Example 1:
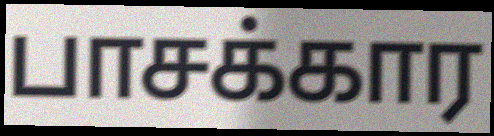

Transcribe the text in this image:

பாசக்கார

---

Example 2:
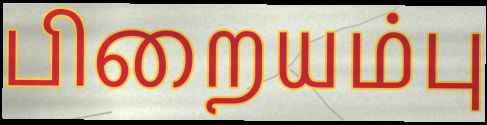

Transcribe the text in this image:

பிறையம்பு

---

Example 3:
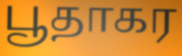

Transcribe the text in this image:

பூதாகர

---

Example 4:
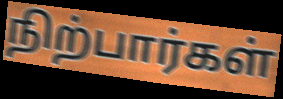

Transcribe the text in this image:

நிற்பார்கள்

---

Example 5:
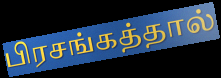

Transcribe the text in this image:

பிரசங்கத்தால்